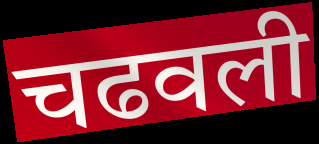
चढवली